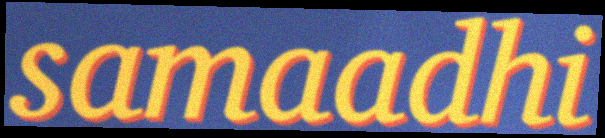
samaadhi